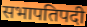
सभापतिपदी